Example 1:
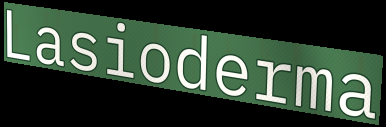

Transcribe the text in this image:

Lasioderma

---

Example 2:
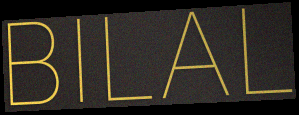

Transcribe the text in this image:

BILAL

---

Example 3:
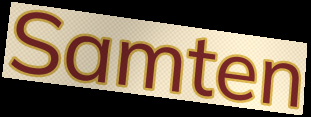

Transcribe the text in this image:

Samten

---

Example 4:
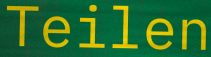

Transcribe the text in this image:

Teilen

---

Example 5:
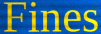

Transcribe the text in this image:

Fines